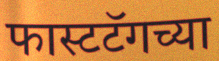
फास्टटॅगच्या